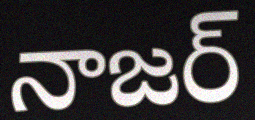
నాజర్